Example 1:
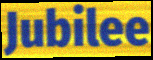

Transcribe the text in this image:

Jubilee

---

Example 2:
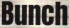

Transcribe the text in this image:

Bunch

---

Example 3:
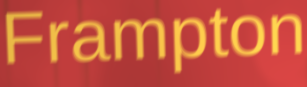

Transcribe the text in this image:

Frampton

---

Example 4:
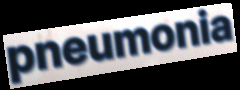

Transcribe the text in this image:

pneumonia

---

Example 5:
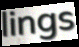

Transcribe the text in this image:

lings